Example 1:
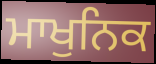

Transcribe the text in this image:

ਮਾਖੁਨਿਕ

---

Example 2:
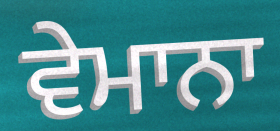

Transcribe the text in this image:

ਵੇਮਾਨਾ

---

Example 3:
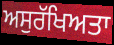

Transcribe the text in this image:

ਅਸੁਰੱਖਿਅਤਾ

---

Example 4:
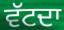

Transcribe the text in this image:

ਵੱਟਦਾ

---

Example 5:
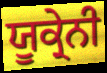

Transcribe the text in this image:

ਯੂਕ੍ਰੇਨੀ